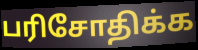
பரிசோதிக்க